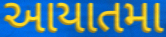
આયાતમા